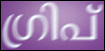
ഗ്രിപ്